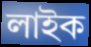
লাইক